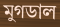
মুগডাল